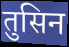
तुसिन